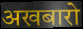
अखबारो